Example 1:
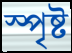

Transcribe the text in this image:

স্পৃষ্ট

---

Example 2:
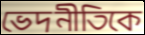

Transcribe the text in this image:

ভেদনীতিকে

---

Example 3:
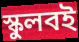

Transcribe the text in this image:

স্কুলবই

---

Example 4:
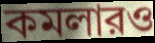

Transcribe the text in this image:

কমলারও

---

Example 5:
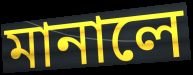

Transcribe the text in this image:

মানালে